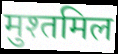
मुश्तमिल